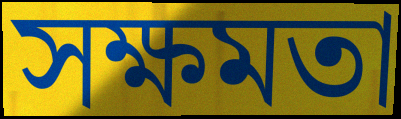
সক্ষমতা